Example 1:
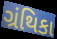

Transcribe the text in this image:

ગ્રંથિકા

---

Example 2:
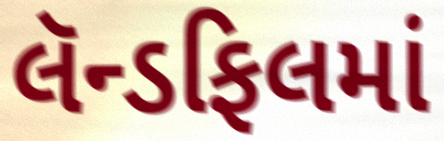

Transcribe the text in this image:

લૅન્ડફિલમાં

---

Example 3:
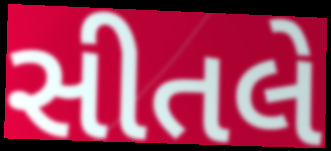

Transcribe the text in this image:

સીતલે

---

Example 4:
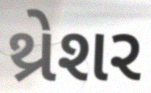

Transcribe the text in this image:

થ્રેશર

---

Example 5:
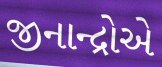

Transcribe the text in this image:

જીનાન્દ્રોએ